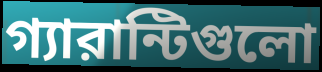
গ্যারান্টিগুলো